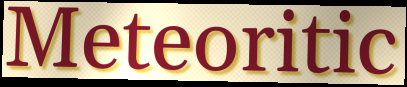
Meteoritic